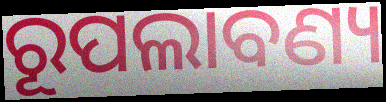
ରୂପଲାବଣ୍ୟ